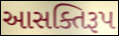
આસક્તિરૂપ